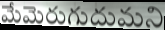
మేమెరుగుదుమని